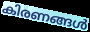
കിരണങ്ങൾ